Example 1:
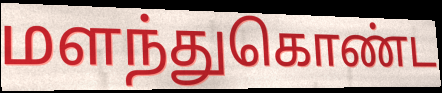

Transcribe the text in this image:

மளந்துகொண்ட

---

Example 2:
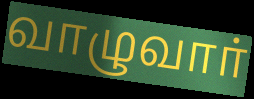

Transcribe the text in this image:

வாழுவார்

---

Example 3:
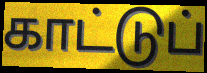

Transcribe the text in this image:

காட்டுப்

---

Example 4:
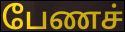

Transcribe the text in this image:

பேணச்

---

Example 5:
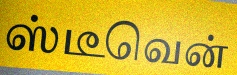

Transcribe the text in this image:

ஸ்டீவென்